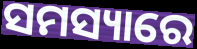
ସମସ୍ୟାରେ